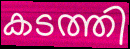
കടത്തി